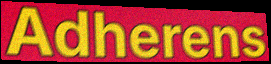
Adherens